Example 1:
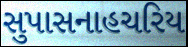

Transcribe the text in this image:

સુપાસનાહચરિય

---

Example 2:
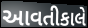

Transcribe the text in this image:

આવતીકાલે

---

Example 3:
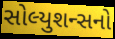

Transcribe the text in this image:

સોલ્યુશન્સનો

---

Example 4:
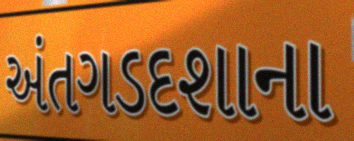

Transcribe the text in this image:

અંતગડદશાના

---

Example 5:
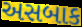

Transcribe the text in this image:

અસબાક